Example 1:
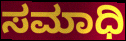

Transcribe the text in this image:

ಸಮಾಧಿ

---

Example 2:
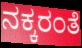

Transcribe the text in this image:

ನಕ್ಕರಂತೆ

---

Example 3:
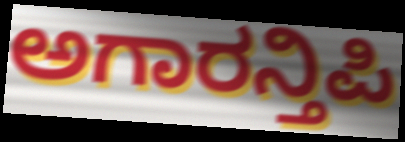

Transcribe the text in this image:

ಅಗಾರನ್ತಿಪಿ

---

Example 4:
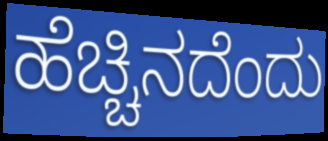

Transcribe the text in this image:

ಹೆಚ್ಚಿನದೆಂದು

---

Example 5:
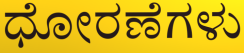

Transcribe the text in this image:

ಧೋರಣೆಗಳು